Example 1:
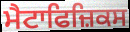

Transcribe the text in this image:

ਮੈਟਾਫਿਜ਼ਿਕਸ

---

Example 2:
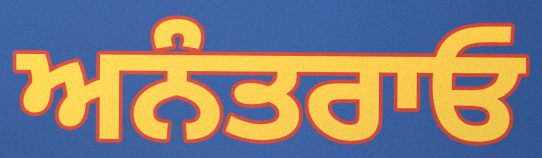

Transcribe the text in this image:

ਅਨੰਤਰਾਓ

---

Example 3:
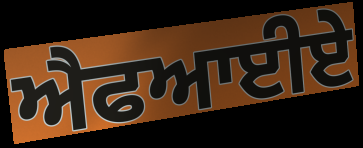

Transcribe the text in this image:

ਐਫਆਈਏ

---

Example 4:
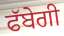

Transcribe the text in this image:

ਫੱਬੇਗੀ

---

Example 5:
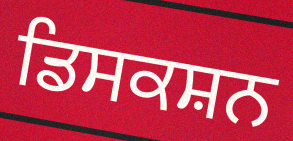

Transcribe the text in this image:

ਡਿਸਕਸ਼ਨ